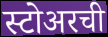
स्टोअरची